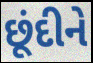
છૂંદીને